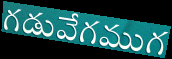
గడువేగముగ